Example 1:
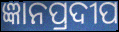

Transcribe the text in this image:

ଜ୍ଞାନପ୍ରଦୀପ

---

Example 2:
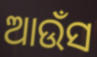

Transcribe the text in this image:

ଆଉଁସ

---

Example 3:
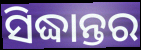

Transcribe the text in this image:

ସିଦ୍ଧାନ୍ତର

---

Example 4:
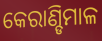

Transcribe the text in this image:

କେରାଣ୍ଡିମାଳ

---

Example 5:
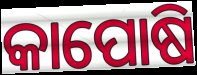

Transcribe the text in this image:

କାପୋଷି